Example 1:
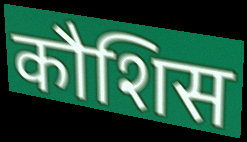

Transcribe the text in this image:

कौशिस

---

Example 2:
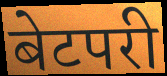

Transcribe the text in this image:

बेटपरी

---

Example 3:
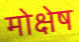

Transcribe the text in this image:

मोक्षेष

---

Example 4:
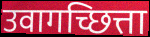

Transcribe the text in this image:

उवागच्छित्ता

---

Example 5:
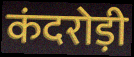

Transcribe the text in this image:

कंदरोड़ी